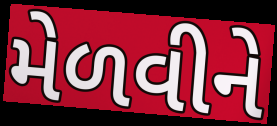
મેળવીને